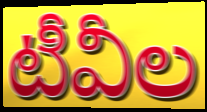
టీవీల